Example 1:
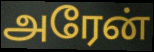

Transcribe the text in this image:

அரேன்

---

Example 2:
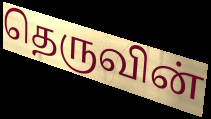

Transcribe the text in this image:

தெருவின்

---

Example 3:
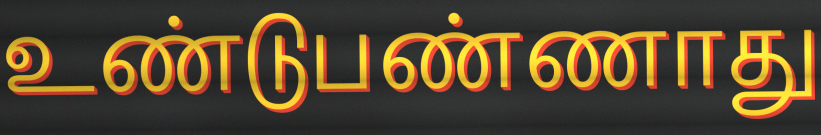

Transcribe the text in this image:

உண்டுபண்ணாது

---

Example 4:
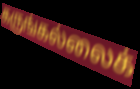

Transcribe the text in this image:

கருங்கல்லைக்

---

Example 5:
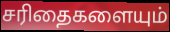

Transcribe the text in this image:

சரிதைகளையும்